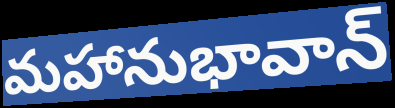
మహానుభావాన్